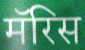
मॅरिस